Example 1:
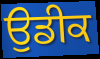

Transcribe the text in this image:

ਉਡੀਕ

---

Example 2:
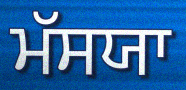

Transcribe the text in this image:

ਮੱਸਯਾ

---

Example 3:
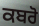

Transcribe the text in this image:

ਕਬਰੋ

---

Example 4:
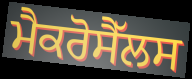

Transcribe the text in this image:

ਮੈਕਰੋਸੈੱਲਸ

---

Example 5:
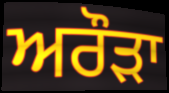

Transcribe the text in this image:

ਅਰੌੜਾ